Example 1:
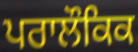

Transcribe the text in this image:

ਪਰਾਲੌਕਿਕ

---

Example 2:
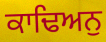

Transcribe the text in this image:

ਕਾਢਿਅਨੁ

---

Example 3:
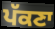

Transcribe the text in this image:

ਪੱਕਣਾ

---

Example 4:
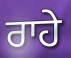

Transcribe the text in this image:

ਰਾਹੇ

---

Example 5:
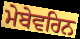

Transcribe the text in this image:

ਮੇਬੇਵਰਿਨ